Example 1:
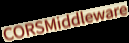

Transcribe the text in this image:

CORSMiddleware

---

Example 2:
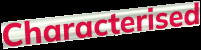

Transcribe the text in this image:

Characterised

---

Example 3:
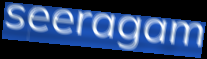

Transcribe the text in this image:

seeragam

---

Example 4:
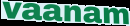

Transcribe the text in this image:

vaanam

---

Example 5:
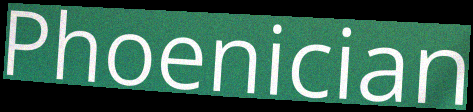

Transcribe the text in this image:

Phoenician